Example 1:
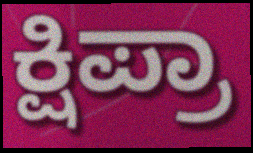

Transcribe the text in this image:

ಕ್ಷಿಪ್ರಾ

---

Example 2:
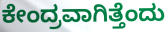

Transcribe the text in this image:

ಕೇಂದ್ರವಾಗಿತ್ತೆಂದು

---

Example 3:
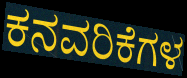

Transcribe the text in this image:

ಕನವರಿಕೆಗಳ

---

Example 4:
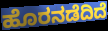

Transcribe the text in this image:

ಹೊರನಡೆದಿದೆ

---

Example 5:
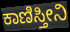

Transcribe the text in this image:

ಕಾಣಿಸ್ತೀನಿ